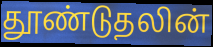
தூண்டுதலின்